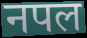
नपल